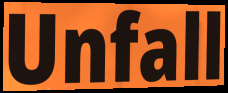
Unfall